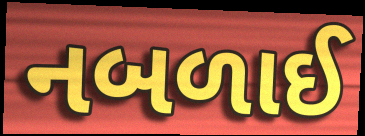
નબળાઈ